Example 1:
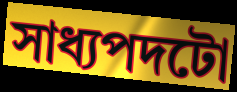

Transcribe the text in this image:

সাধ্যপদটো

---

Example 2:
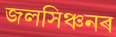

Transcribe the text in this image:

জলসিঞ্চনৰ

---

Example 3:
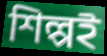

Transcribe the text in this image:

শিল্পই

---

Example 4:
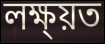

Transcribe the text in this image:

লক্ষ্য়ত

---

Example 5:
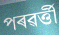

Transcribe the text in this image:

পৰৱৰ্ত্তী